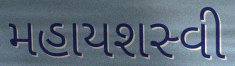
મહાયશસ્વી